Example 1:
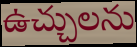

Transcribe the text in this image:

ఉచ్చులను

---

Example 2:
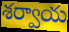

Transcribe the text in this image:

శర్వాయ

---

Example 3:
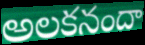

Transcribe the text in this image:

అలకనందా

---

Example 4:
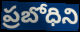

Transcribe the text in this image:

ప్రబోధిని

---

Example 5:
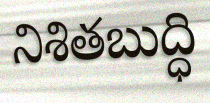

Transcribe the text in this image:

నిశితబుద్ధి